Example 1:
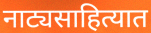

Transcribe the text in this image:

नाट्यसाहित्यात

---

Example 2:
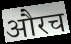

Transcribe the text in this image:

औरच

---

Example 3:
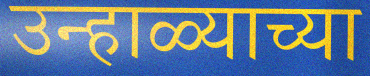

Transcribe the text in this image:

उन्हाळ्याच्या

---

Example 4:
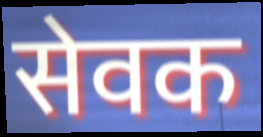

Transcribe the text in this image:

सेवक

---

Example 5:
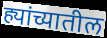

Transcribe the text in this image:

ह्यांच्यातील